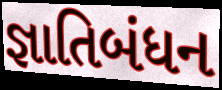
જ્ઞાતિબંધન